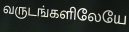
வருடங்களிலேயே